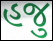
હજુ